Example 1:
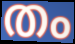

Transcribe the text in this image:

തം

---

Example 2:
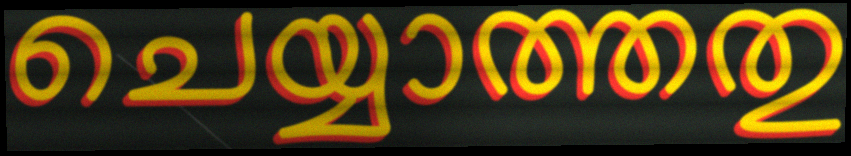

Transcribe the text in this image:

ചെയ്യാത്തതു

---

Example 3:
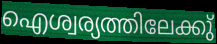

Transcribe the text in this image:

ഐശ്വര്യത്തിലേക്കു്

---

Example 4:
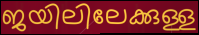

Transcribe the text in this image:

ജയിലിലേക്കുള്ള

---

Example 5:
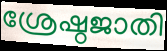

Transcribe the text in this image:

ശ്രേഷ്ഠജാതി